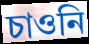
চাওনি